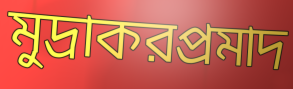
মুদ্রাকরপ্রমাদ